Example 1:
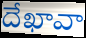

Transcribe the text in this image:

దేఖావా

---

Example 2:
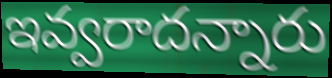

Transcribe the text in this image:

ఇవ్వరాదన్నారు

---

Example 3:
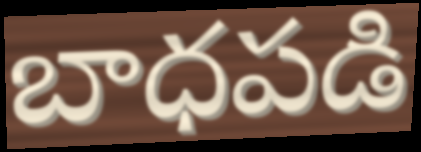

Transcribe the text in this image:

బాధపడి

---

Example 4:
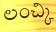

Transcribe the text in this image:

లంచ్కి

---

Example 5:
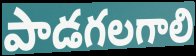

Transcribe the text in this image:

పాడగలగాలి